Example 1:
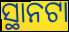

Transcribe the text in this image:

ସ୍ଥାନଟା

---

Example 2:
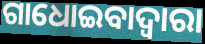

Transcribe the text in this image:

ଗାଧୋଇବାଦ୍ଵାରା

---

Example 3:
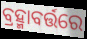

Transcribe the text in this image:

ବ୍ରହ୍ମାବର୍ତ୍ତରେ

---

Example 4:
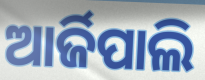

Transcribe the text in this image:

ଆର୍ଜିପାଲି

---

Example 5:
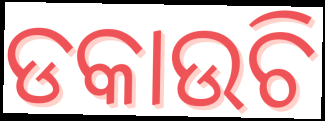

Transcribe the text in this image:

ଡକାଉଚି